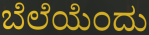
ಬೆಲೆಯೆಂದು